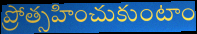
ప్రోత్సహించుకుంటాం